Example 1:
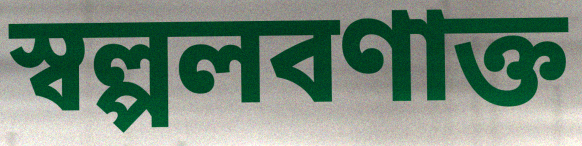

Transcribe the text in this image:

স্বল্পলবণাক্ত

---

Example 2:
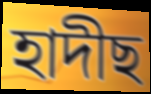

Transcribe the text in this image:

হাদীছ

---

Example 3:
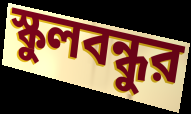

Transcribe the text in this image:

স্কুলবন্ধুর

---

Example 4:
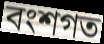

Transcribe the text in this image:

বংশগত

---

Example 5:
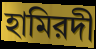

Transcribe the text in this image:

হামিরদী